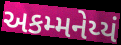
અકમ્મનેય્યં